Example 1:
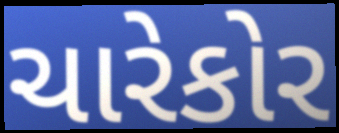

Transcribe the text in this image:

ચારેકોર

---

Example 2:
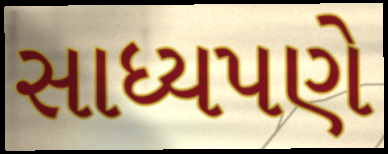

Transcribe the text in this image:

સાધ્યપણે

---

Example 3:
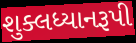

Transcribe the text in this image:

શુક્લધ્યાનરૂપી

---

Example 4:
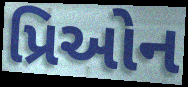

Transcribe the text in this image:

પ્રિઓન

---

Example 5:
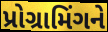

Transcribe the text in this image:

પ્રોગ્રામિંગને